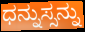
ಧನ್ನುಸ್ಸನ್ನು